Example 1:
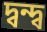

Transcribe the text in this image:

দ্বন্দ্ব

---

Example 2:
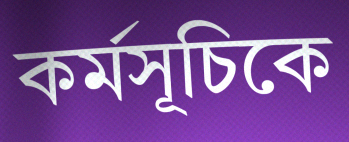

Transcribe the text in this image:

কর্মসূচিকে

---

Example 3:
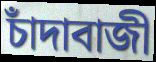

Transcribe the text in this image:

চাঁদাবাজী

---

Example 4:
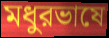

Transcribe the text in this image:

মধুরভাষে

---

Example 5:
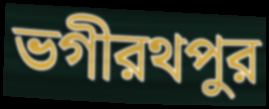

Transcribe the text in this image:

ভগীরথপুর